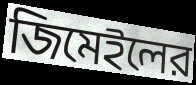
জিমেইলের